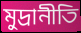
মুদ্রানীতি